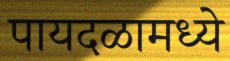
पायदळामध्ये